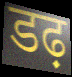
डढ़